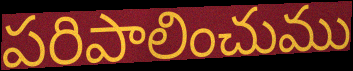
పరిపాలించుము